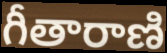
గీతారాణి